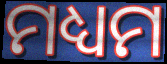
ମଧ୍ୟମ